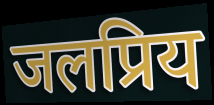
जलप्रिय